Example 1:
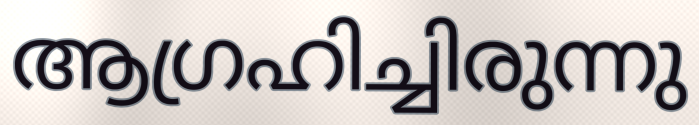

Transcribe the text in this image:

ആഗ്രഹിച്ചിരുന്നു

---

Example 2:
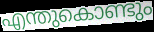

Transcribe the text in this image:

എന്തുകൊണ്ടും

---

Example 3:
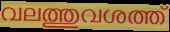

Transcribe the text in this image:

വലത്തുവശത്ത്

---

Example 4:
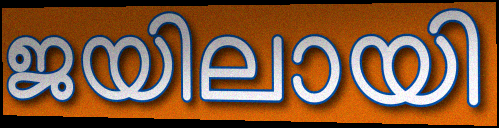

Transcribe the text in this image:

ജയിലായി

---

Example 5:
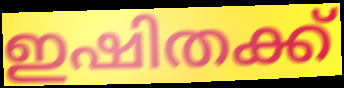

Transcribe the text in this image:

ഇഷിതക്ക്